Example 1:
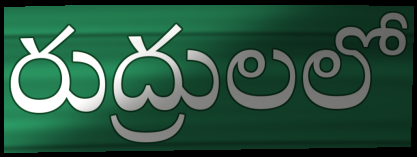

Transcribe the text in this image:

రుద్రులలో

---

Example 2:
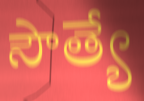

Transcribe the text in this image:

సౌత్యే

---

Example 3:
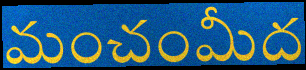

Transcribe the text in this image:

మంచంమీద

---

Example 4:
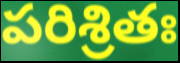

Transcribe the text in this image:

పరిశ్రితః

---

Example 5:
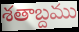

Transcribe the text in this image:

శతాబ్దము